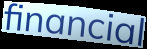
financial